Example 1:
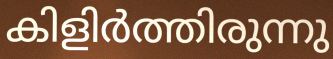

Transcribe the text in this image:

കിളിർത്തിരുന്നു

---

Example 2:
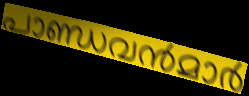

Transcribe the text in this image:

പാണ്ഡവൻമാർ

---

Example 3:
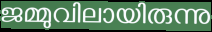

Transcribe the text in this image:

ജമ്മുവിലായിരുന്നു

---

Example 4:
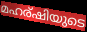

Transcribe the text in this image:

മഹര്ഷിയുടെ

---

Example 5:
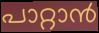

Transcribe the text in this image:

പാറ്റാൻ